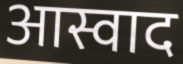
आस्‍वाद